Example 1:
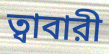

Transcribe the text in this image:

ত্বাবারী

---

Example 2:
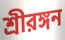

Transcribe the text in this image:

শ্রীরঙ্গন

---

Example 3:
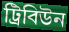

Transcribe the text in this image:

ট্রিবিউন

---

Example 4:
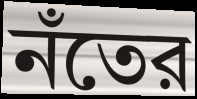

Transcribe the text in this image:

নঁতের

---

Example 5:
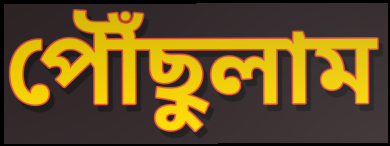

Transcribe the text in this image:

পৌঁছুলাম